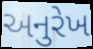
અનુરેખ